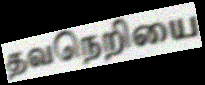
தவநெறியை